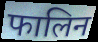
फालिन